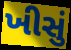
ખીસું